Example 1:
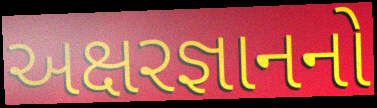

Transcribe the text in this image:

અક્ષરજ્ઞાનનો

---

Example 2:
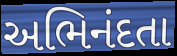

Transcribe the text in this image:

અભિનંદતા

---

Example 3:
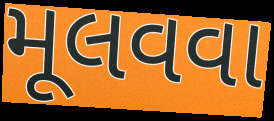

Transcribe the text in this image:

મૂલવવા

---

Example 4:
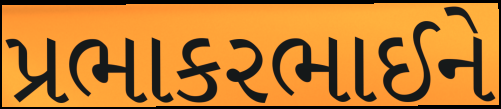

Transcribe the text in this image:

પ્રભાકરભાઈને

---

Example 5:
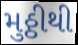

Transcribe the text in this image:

મુઠ્ઠીથી